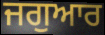
ਜਗੁਆਰ